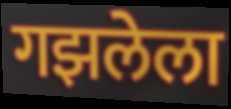
गझलेला